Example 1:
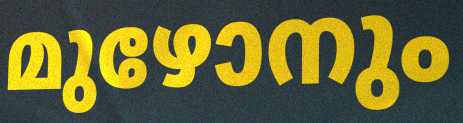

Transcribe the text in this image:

മുഴോനും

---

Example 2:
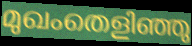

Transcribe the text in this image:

മുഖംതെളിഞ്ഞു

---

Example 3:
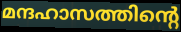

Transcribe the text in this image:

മന്ദഹാസത്തിന്റെ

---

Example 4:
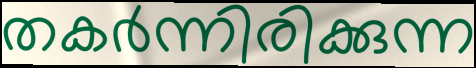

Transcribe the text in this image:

തകർന്നിരിക്കുന്ന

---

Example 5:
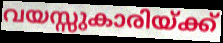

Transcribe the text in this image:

വയസ്സുകാരിയ്ക്ക്